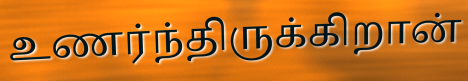
உணர்ந்திருக்கிறான்